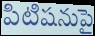
పిటిషనుపై